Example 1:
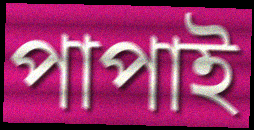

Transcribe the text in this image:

পাপাই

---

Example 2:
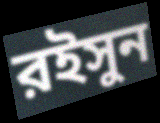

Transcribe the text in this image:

রইসুন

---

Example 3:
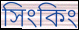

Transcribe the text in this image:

সিংকিং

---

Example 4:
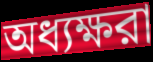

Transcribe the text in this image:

অধ্যক্ষরা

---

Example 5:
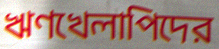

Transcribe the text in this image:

ঋণখেলাপিদের